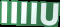
IIIIU